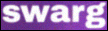
swarg